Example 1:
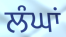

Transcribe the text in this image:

ਲੰਘਾਂ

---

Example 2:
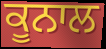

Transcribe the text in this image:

ਕੂਨਾਲ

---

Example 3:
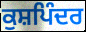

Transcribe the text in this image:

ਕੁਸ਼ਪਿੰਦਰ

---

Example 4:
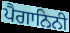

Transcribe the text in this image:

ਪੈਗਾਨਿਨੀ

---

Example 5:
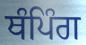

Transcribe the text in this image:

ਥੰਪਿੰਗ